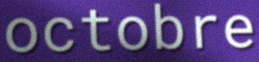
octobre